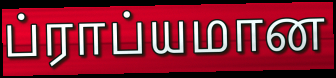
ப்ராப்யமான